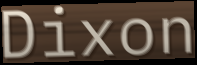
Dixon